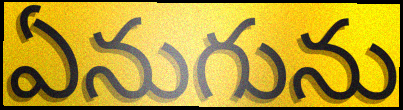
ఏనుగును